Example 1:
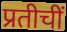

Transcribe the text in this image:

प्रतीचीं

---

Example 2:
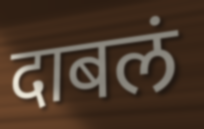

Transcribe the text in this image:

दाबलं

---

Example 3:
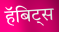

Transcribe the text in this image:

हॅबिट्स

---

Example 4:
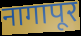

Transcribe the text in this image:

नागापूर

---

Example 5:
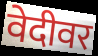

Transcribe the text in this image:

वेदीवर